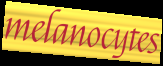
melanocytes